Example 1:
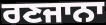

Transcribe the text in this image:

ਰਣਜਾਨਾ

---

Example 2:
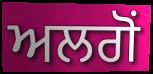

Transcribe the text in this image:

ਅਲਗੋਂ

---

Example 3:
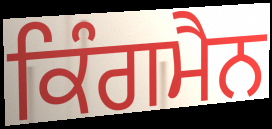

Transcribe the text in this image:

ਕਿੰਗਮੈਨ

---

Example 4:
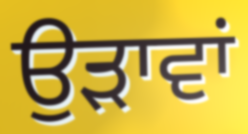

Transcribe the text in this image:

ਉੜਾਵਾਂ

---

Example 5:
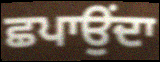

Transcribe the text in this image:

ਛਪਾਉਂਦਾ